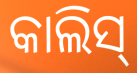
କାଲିସ୍